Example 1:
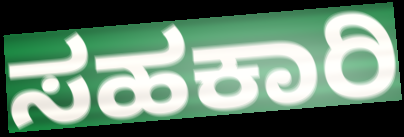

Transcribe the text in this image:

ಸಹಕಾರಿ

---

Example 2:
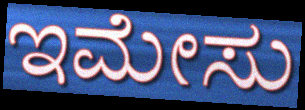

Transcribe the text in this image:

ಇಮೇಸು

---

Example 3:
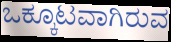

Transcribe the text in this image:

ಒಕ್ಕೂಟವಾಗಿರುವ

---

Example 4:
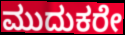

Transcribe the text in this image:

ಮುದುಕರೇ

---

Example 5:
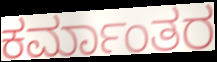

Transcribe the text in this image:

ಕರ್ಮಾಂತರ